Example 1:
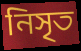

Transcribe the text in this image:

নিসৃত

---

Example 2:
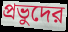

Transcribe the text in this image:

প্রভুদের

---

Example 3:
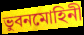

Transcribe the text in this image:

ভুবনমোহিনী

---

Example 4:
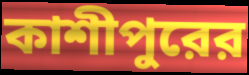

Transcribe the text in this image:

কাশীপুরের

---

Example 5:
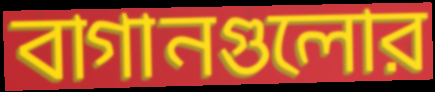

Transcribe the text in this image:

বাগানগুলোর